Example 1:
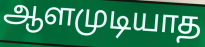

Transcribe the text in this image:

ஆளமுடியாத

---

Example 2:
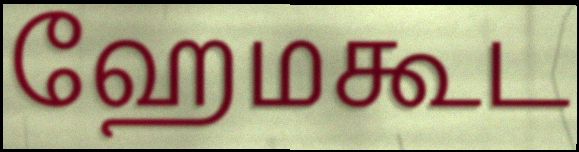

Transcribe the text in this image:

ஹேமகூட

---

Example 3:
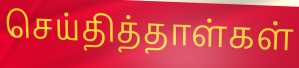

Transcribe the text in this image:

செய்தித்தாள்கள்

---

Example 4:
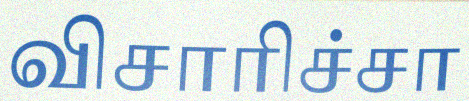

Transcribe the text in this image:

விசாரிச்சா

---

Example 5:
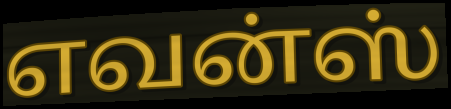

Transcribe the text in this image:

எவன்ஸ்